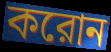
করোন